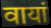
वायां